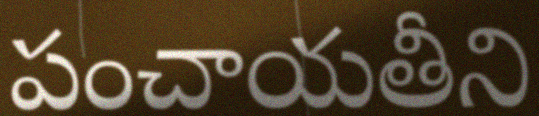
పంచాయతీని